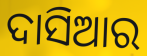
ଦାସିଆର